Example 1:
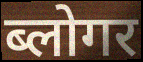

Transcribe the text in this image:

ब्लोगर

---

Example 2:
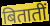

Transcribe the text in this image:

बितातीं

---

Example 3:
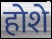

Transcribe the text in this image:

होशे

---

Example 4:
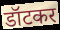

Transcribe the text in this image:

डॉटकर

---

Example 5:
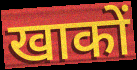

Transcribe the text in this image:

खाकों